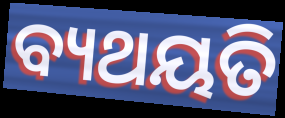
ବ୍ୟଥୟତି